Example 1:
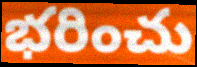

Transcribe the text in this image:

భరించు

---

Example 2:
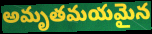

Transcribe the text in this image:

అమృతమయమైన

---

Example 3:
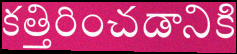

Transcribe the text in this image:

కత్తిరించడానికి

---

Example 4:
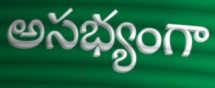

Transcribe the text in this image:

అసభ్యంగా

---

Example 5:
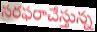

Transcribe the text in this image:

సరఫరాచేస్తున్న